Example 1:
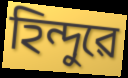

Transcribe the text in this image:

হিন্দুৱে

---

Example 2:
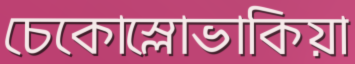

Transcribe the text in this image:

চেকোস্লোভাকিয়া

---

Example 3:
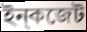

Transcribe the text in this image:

ইন্কজেট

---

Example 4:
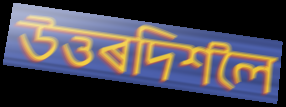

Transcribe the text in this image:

উত্তৰদিশলৈ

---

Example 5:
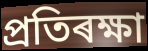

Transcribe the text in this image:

প্ৰতিৰক্ষা